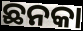
ଛନକା